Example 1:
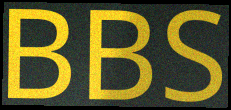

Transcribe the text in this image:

BBS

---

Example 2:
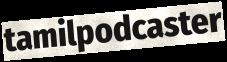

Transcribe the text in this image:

tamilpodcaster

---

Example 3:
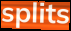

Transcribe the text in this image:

splits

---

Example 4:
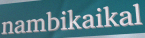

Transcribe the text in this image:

nambikaikal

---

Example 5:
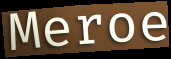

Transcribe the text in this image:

Meroe